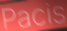
Pacis